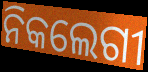
ନିକଲେଗୀ